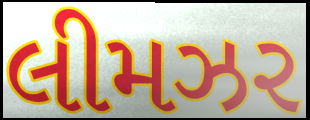
લીમઝર